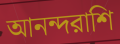
আনন্দরাশি